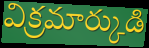
విక్రమార్కుడి